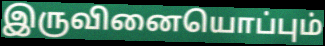
இருவினையொப்பும்